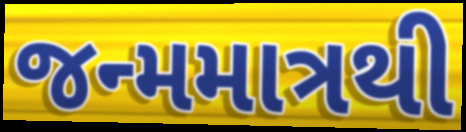
જન્મમાત્રથી